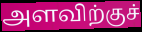
அளவிற்குச்